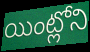
యింట్లోని